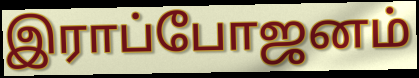
இராப்போஜனம்